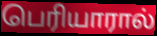
பெரியாரால்